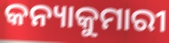
କନ୍ୟାକୁମାରୀ